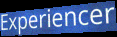
Experiencer